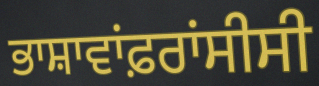
ਭਾਸ਼ਾਵਾਂਫ਼ਰਾਂਸੀਸੀ